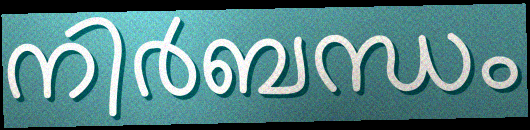
നിർബന്ധം